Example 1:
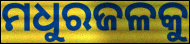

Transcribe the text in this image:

ମଧୁରଜଳକୁ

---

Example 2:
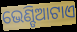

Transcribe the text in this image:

ଭେଣ୍ଡିଆଟାଏ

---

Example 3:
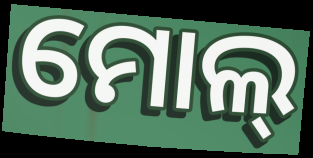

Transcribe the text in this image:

ମୋଲ୍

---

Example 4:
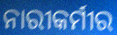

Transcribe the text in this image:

ନାରୀକର୍ମୀର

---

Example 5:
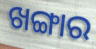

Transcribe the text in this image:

ଖଙ୍ଗାର